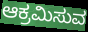
ಆಕ್ರಮಿಸುವ